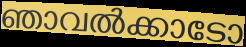
ഞാവൽക്കാടോ